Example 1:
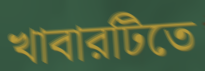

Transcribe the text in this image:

খাবারটিতে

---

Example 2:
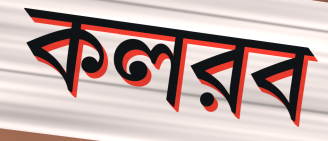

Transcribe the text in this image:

কলরব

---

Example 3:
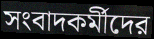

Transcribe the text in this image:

সংবাদকর্মীদের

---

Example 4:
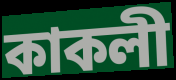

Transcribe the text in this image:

কাকলী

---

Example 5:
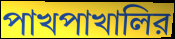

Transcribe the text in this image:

পাখপাখালির